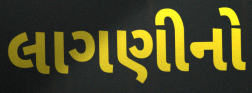
લાગણીનો